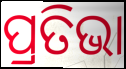
ପ୍ରତିଭା